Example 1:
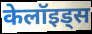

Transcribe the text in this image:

केलॉइड्स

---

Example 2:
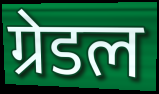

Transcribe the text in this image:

ग्रेडल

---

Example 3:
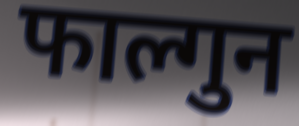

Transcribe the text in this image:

फाल्गुन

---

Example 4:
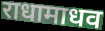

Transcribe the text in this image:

राधामाधव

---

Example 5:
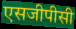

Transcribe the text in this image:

एसजीपीसी